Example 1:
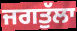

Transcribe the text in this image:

ਜਗਤੁੱਲਾ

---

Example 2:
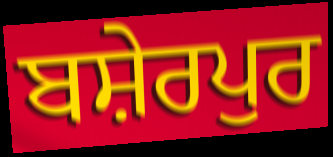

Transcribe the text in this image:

ਬਸ਼ੇਰਪੁਰ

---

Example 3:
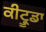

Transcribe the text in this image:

ਕੀਟ੍ਰੂਡਾ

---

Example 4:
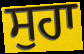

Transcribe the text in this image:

ਸੁਹਾ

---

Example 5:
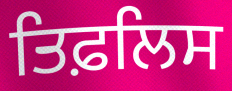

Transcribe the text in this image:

ਤਿਫ਼ਲਿਸ